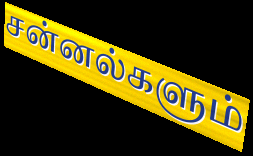
சன்னல்களும்